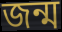
জন্ম